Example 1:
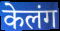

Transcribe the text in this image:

केलंग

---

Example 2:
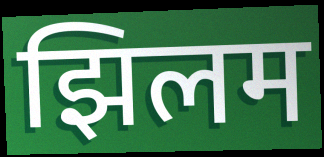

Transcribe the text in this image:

झिलम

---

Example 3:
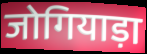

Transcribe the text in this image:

जोगियाड़ा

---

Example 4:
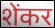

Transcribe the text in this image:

शेंकर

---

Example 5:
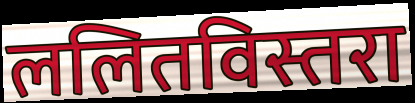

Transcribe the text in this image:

ललितविस्तरा